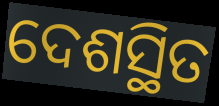
ଦେଶସ୍ଥିତ